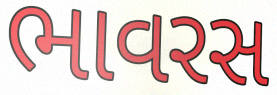
ભાવરસ